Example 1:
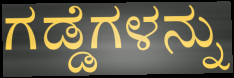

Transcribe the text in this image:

ಗಡ್ಡೆಗಳನ್ನು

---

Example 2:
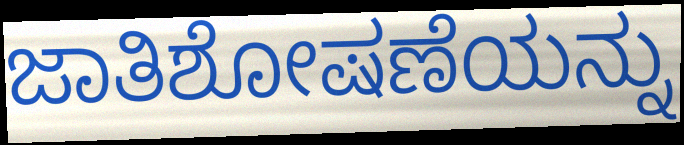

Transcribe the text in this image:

ಜಾತಿಶೋಷಣೆಯನ್ನು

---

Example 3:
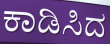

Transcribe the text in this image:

ಕಾಡಿಸಿದ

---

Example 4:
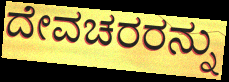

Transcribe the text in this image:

ದೇವಚರರನ್ನು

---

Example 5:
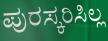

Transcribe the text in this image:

ಪುರಸ್ಕರಿಸಿಲ್ಲ